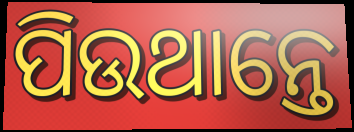
ପିଉଥାନ୍ତେ